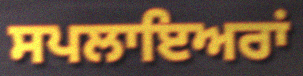
ਸਪਲਾਇਅਰਾਂ